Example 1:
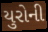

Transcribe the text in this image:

યુરોની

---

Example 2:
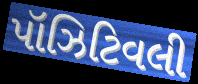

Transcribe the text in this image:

પૉઝિટિવલી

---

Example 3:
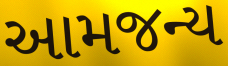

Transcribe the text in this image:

આમજન્ય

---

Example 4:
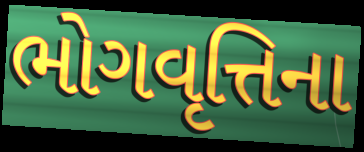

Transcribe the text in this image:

ભોગવૃત્તિના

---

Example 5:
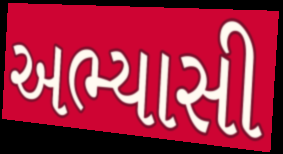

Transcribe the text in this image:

અભ્યાસી